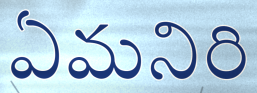
ఏమనిరి